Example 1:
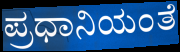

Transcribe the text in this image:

ಪ್ರಧಾನಿಯಂತೆ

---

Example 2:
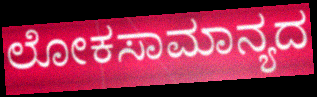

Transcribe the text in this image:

ಲೋಕಸಾಮಾನ್ಯದ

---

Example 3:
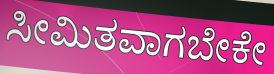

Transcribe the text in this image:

ಸೀಮಿತವಾಗಬೇಕೇ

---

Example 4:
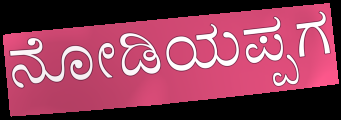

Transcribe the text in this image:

ನೋಡಿಯಪ್ಪಗ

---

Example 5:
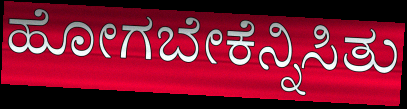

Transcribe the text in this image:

ಹೋಗಬೇಕೆನ್ನಿಸಿತು